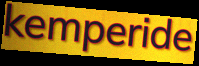
kemperide